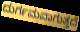
ದುರ್ಗಮವಾಗುತ್ತದೆ